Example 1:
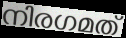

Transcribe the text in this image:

നിരഗമത്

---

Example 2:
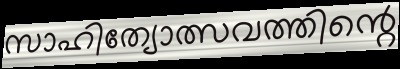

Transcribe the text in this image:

സാഹിത്യോത്സവത്തിന്റെ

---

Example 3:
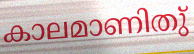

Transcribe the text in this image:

കാലമാണിതു്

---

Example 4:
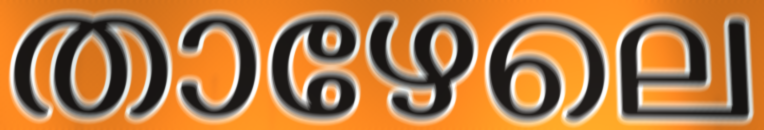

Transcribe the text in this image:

താഴേലെ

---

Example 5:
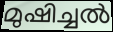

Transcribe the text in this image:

മുഷിച്ചൽ